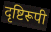
दृष्टिरूपी